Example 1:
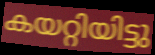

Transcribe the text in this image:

കയറ്റിയിട്ടു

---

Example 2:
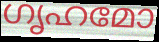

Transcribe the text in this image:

ഗൃഹമോ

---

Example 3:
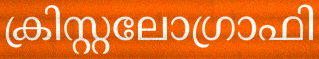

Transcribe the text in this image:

ക്രിസ്റ്റലോഗ്രാഫി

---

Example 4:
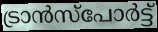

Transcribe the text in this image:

ട്രാൻസ്പോർട്ട്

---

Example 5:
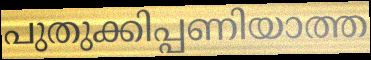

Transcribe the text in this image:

പുതുക്കിപ്പണിയാത്ത